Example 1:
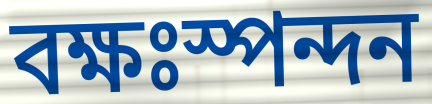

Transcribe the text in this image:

বক্ষঃস্পন্দন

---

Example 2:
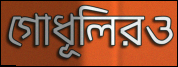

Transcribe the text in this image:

গোধূলিরও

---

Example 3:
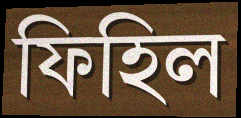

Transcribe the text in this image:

ফিহিল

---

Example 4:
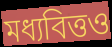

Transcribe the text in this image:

মধ্যবিত্তও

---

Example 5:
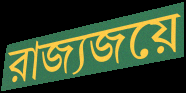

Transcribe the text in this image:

রাজ্যজয়ে